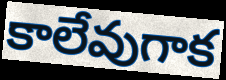
కాలేవుగాక